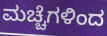
ಮಚ್ಚೆಗಳಿಂದ